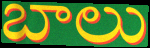
బాలు